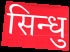
सिन्धु